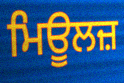
ਮਿਊਲਜ਼